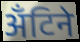
अँटिने